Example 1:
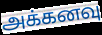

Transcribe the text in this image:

அக்கனவு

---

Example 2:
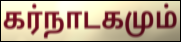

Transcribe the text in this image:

கர்நாடகமும்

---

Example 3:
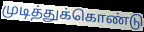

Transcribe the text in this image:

முடித்துக்கொண்டு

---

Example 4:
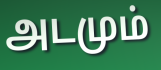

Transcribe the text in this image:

அடமும்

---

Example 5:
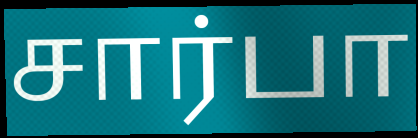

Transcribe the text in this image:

சார்பா